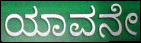
ಯಾವನೇ